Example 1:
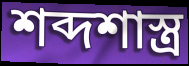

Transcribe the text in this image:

শব্দশাস্ত্র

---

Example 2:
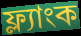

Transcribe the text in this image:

ফ্ল্যাংক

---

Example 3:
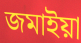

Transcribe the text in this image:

জমাইয়া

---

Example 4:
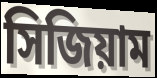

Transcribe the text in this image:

সিজিয়াম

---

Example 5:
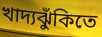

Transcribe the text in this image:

খাদ্যঝুঁকিতে